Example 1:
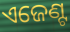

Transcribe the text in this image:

ଏଜେଣ୍ଟ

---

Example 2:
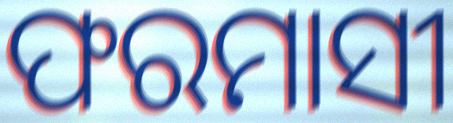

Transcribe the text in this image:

ଫରମାସୀ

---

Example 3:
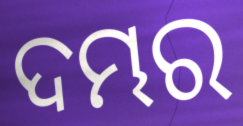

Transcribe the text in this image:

ଦମ୍ଭର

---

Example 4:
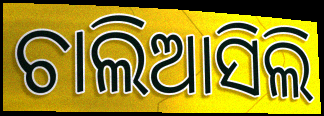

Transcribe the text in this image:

ଚାଲିଆସିଲି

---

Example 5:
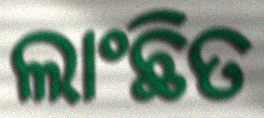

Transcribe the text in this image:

ଲାଂଛିତ